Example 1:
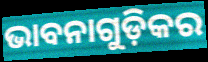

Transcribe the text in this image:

ଭାବନାଗୁଡ଼ିକର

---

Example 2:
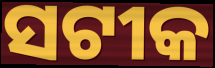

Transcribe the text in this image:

ସଟୀକ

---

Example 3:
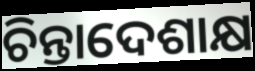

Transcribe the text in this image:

ଚିନ୍ତାଦେଶାକ୍ଷ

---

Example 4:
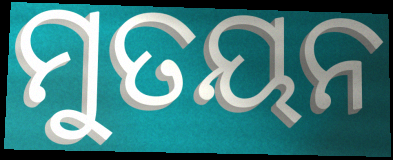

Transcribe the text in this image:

ମୁତୟନ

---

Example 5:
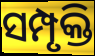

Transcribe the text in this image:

ସମ୍ପୃକ୍ତି